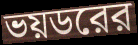
ভয়ডরের